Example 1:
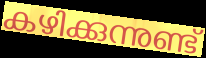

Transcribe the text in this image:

കഴിക്കുന്നുണ്ട്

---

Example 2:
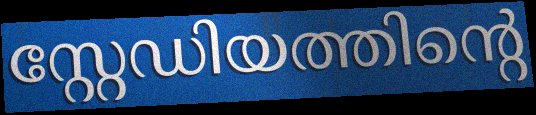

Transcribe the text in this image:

സ്റ്റേഡിയത്തിന്റെ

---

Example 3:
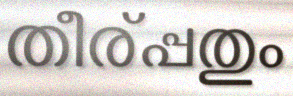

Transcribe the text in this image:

തീര്പ്പതും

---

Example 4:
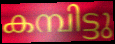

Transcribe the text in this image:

കമ്പിട്ടു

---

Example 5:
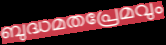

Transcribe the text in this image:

ബുദ്ധമതപ്രേമവും